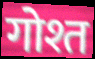
गोश्त